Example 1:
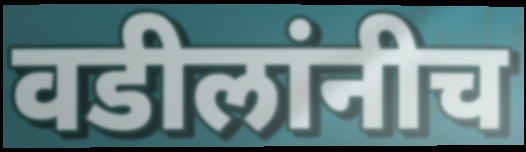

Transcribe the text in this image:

वडीलांनीच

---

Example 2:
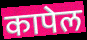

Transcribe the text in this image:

कापेल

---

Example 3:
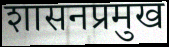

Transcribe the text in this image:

शासनप्रमुख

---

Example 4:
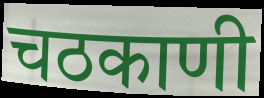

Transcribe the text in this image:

चठकाणी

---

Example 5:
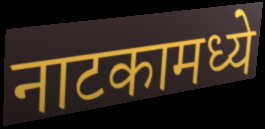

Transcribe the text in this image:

नाटकामध्ये